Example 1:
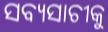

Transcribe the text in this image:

ସବ୍ୟସାଚୀକୁ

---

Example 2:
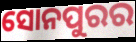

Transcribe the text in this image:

ସୋନପୁରର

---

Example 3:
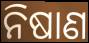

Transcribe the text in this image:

ନିଷାଣ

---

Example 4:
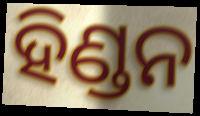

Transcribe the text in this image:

ହିଣ୍ଡନ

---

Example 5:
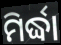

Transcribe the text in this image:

ମିର୍ଦ୍ଧା